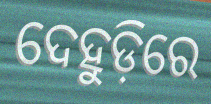
ଦେହୁଡ଼ିରେ